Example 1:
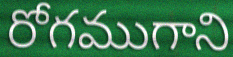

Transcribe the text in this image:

రోగముగాని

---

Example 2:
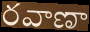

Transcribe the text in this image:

రవాణా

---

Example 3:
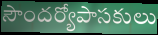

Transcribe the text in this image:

సౌందర్యోపాసకులు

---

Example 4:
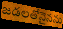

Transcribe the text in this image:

జడలతోనైనను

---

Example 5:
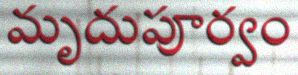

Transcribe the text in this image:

మృదుపూర్వం